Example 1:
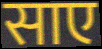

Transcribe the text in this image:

साए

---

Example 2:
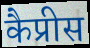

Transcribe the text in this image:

कैप्रीस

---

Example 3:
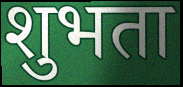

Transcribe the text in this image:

शुभता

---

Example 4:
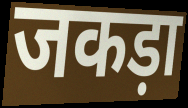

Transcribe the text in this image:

जकड़ा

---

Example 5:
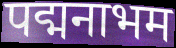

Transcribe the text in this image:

पद्मनाभम